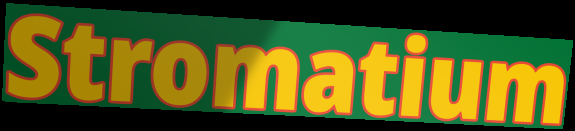
Stromatium